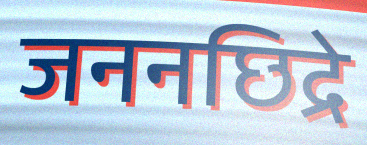
जननछिद्रे